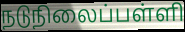
நடுநிலைப்பள்ளி